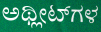
ಅಥ್ಲೀಟ್‌ಗಳ